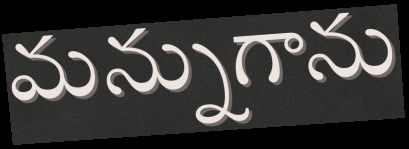
మన్నుగాను